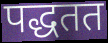
पद्धतत